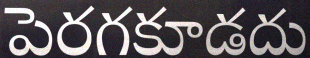
పెరగకూడదు